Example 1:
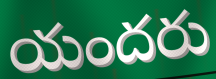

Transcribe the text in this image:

యందరు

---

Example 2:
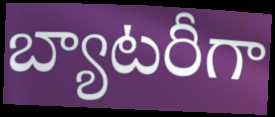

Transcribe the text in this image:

బ్యాటరీగా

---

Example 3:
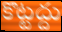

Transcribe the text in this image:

కొట్టద్దు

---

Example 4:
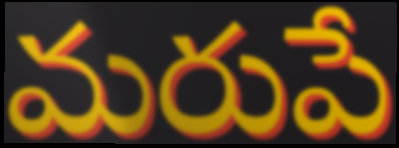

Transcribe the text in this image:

మరుపే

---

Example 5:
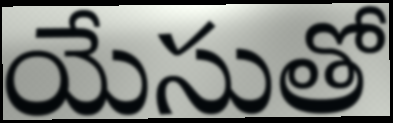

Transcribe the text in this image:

యేసుతో